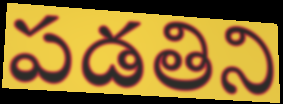
పడతిని